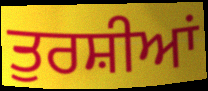
ਤੁਰਸ਼ੀਆਂ